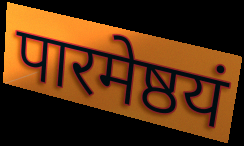
पारमेष्ठयं